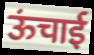
ऊंचाई